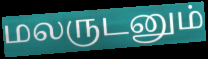
மலருடனும்